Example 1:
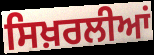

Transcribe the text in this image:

ਸਿਖ਼ਰਲੀਆਂ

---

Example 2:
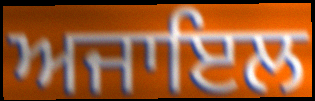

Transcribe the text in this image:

ਅਜਾਇਲ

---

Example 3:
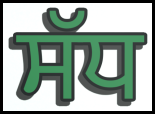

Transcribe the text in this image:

ਸੱਧ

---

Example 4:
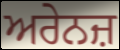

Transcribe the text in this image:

ਅਰੇਨਜ਼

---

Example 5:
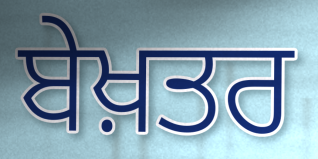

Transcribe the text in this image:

ਬੇਖ਼ਤਰ